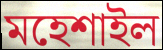
মহেশাইল